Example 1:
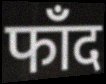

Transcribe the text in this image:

फाँद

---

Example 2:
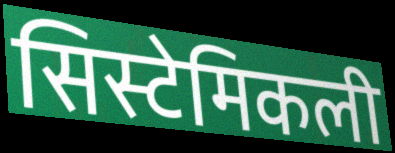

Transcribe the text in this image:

सिस्टेमिकली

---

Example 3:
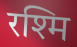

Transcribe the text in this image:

रश्मि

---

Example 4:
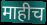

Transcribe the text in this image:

माहीच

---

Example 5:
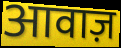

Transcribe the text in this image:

आवाज़